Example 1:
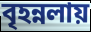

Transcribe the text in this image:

বৃহন্নলায়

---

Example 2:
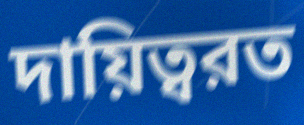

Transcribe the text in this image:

দায়িত্বরত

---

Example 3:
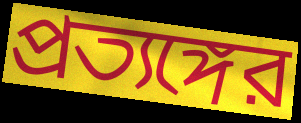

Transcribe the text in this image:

প্রত্যঙ্গের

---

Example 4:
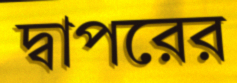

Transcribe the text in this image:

দ্বাপরের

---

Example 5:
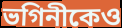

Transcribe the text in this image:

ভগিনীকেও